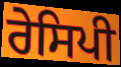
ਰੇਸਿਪੀ